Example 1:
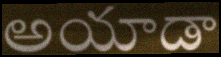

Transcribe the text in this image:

అయాడా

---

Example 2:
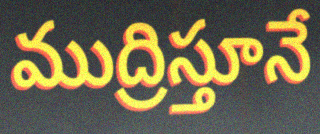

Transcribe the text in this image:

ముద్రిస్తూనే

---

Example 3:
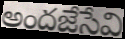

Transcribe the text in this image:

అందజేసేవి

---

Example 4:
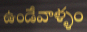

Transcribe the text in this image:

ఉండేవాళ్ళం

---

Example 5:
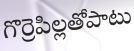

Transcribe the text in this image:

గొర్రెపిల్లతోపాటు